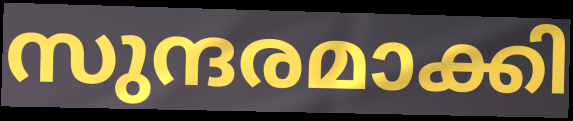
സുന്ദരമാക്കി